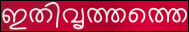
ഇതിവൃത്തത്തെ